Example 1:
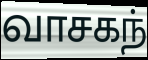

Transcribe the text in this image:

வாசகந்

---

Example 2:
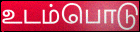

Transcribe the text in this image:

உடம்பொடு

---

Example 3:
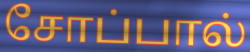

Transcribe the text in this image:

சோப்பால்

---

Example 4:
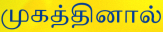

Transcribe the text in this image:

முகத்தினால்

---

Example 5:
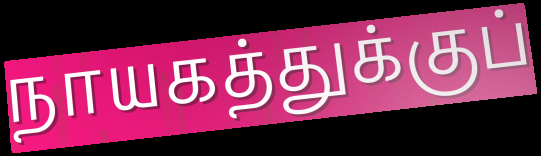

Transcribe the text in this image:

நாயகத்துக்குப்